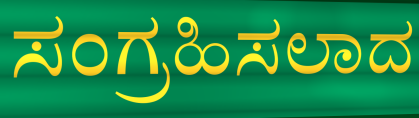
ಸಂಗ್ರಹಿಸಲಾದ